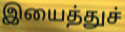
இயைத்துச்